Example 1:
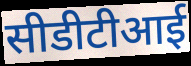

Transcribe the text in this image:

सीडीटीआई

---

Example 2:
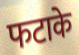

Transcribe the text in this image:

फटाके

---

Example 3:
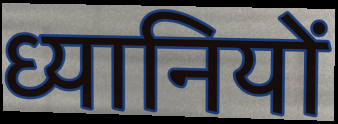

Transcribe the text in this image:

ध्यानियों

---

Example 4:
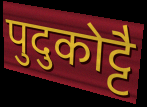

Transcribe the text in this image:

पुदुकोट्टै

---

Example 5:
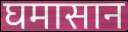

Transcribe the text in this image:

घमासान